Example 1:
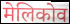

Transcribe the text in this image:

मेलिकोव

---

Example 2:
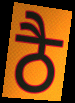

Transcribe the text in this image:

ठै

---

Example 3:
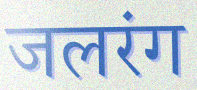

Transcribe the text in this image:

जलरंग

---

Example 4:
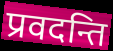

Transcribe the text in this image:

प्रवदन्ति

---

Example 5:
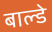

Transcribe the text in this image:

बाल्डे